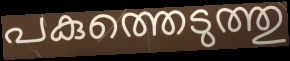
പകുത്തെടുത്തു